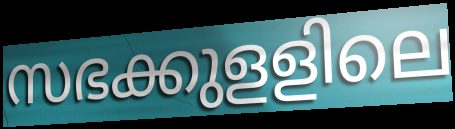
സഭക്കുളളിലെ